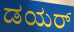
ಡಯರ್